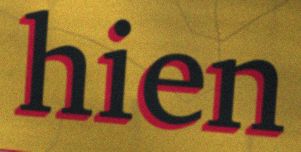
hien